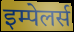
इम्पेलर्स